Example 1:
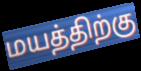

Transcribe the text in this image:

மயத்திற்கு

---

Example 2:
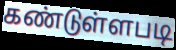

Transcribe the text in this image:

கண்டுள்ளபடி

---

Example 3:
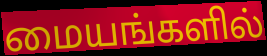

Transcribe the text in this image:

மையங்களில்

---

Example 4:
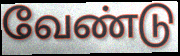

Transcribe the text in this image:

வேண்டு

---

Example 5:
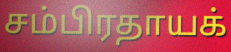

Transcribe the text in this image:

சம்பிரதாயக்